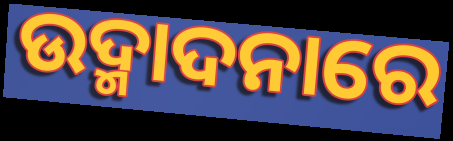
ଉଦ୍ମାଦନାରେ